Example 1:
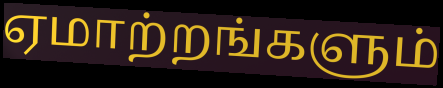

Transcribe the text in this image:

ஏமாற்றங்களும்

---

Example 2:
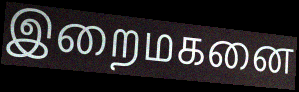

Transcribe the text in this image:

இறைமகனை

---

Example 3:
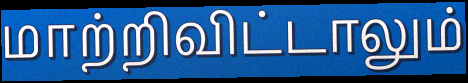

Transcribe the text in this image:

மாற்றிவிட்டாலும்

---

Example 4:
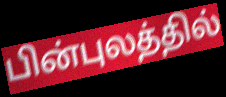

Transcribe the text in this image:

பின்புலத்தில்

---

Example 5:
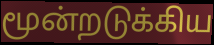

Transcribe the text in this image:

மூன்றடுக்கிய